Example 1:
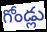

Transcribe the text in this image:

గోండ్లు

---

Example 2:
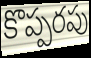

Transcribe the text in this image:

కొప్పరపు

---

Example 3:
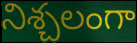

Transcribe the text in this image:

నిశ్చలంగా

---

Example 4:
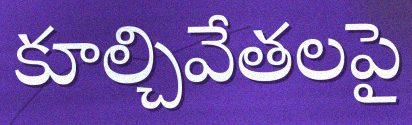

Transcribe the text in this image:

కూల్చివేతలపై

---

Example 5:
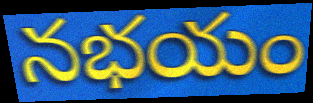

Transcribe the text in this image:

నభయం